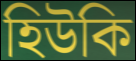
হিউকি